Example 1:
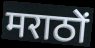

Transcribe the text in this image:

मराठों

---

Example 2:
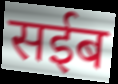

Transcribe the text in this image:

सईब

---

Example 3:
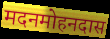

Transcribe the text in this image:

मदनमोहनदास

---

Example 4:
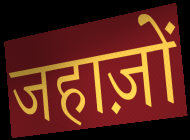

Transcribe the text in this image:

जहाज़ों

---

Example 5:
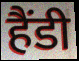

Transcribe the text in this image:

हैंडी